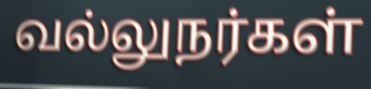
வல்லுநர்கள்